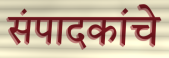
संपादकांचे